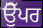
ਉੋੱਪਰ